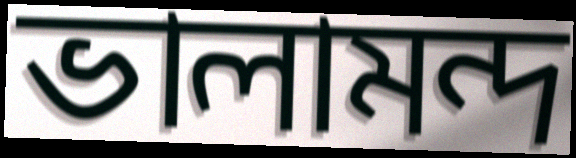
ভালামন্দ